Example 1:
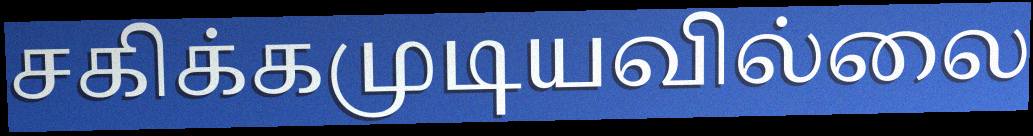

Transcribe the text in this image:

சகிக்கமுடியவில்லை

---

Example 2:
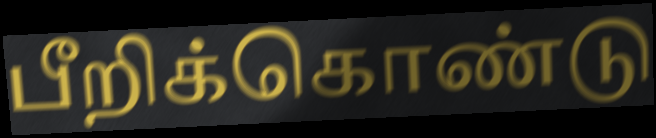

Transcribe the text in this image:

பீறிக்கொண்டு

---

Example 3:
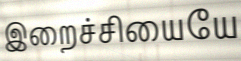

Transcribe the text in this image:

இறைச்சியையே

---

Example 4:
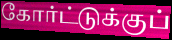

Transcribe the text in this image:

கோர்ட்டுக்குப்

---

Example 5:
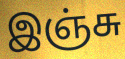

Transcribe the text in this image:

இஞ்சு